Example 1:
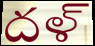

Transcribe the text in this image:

దళ్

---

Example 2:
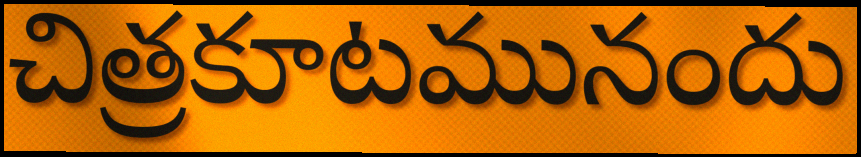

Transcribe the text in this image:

చిత్రకూటమునందు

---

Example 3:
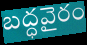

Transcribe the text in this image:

బద్ధవైరం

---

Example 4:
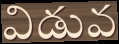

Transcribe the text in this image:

విడువ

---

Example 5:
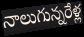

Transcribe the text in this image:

నాలుగున్నరేళ్ల